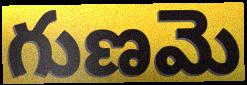
గుణమె